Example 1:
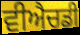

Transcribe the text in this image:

ਵੀਐਚਡੀ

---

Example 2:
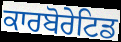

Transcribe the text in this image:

ਕਾਰਬੋਰੇਟਿਡ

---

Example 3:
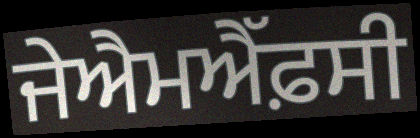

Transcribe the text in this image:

ਜੇਐਮਐੱਫ਼ਸੀ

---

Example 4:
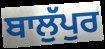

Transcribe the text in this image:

ਬਾਲੁੱਪੁਰ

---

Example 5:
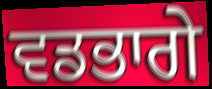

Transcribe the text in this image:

ਵਡਭਾਗੇ